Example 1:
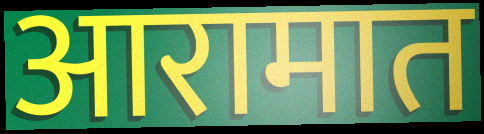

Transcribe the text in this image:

आरामात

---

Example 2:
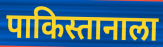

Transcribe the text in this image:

पाकिस्तानाला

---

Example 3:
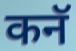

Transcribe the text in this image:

कनॅ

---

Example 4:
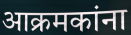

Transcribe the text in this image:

आक्रमकांना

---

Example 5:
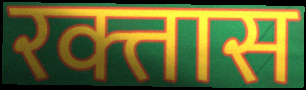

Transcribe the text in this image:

रक्तास